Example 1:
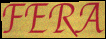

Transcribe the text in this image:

FERA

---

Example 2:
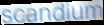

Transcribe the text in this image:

scandium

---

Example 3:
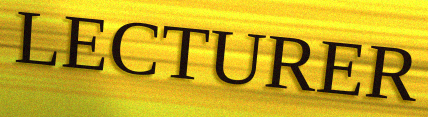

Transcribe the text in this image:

LECTURER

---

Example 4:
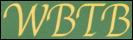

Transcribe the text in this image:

WBTB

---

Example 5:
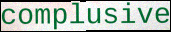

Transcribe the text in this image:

complusive